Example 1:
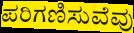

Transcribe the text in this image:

ಪರಿಗಣಿಸುವೆವು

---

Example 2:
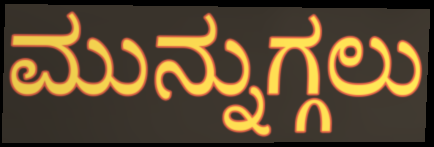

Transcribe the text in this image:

ಮುನ್ನುಗ್ಗಲು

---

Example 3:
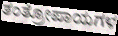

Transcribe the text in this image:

ತಂತ್ರೋಪಾಯಗಳ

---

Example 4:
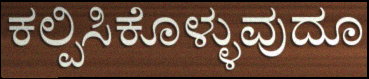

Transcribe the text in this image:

ಕಲ್ಪಿಸಿಕೊಳ್ಳುವುದೂ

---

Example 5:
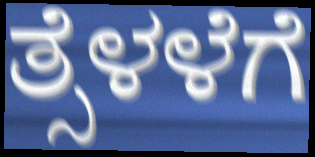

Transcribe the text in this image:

ತ್ಸೆಳಳೆಗೆ